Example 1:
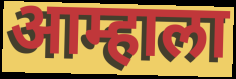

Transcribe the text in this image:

आम्हाला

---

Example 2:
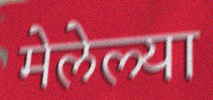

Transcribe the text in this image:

मेलेल्या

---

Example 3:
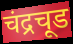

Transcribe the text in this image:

चंद्रचूड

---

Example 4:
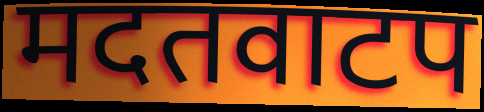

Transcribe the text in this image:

मदतवाटप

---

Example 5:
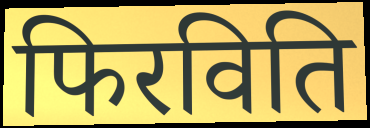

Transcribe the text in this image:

फिरविति